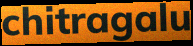
chitragalu